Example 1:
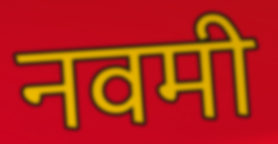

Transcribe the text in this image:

नवमी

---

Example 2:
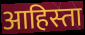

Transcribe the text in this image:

आहिस्‍ता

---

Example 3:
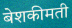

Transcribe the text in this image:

बेशकीमती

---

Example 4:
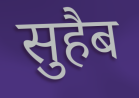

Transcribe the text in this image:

सुहैब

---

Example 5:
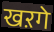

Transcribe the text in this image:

खऱगे